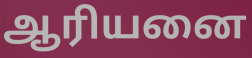
ஆரியனை